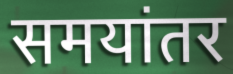
समयांतर